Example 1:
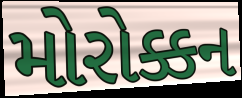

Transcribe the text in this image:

મોરોક્કન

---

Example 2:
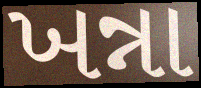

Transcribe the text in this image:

ખન્ના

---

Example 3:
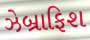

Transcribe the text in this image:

ઝેબ્રાફિશ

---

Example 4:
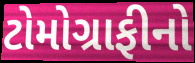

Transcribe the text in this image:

ટોમોગ્રાફીનો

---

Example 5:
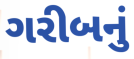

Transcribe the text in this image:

ગરીબનું